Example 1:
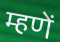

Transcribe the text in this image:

म्हणें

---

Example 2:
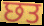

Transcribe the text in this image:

छउ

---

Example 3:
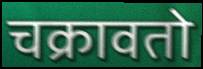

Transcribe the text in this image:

चक्रावतो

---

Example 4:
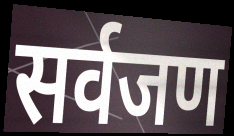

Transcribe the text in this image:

सर्वजण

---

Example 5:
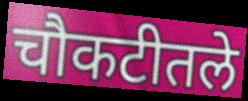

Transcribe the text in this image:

चौकटीतले